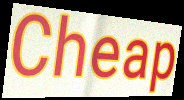
Cheap